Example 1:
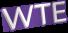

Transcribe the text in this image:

WTE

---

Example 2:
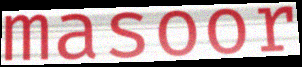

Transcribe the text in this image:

masoor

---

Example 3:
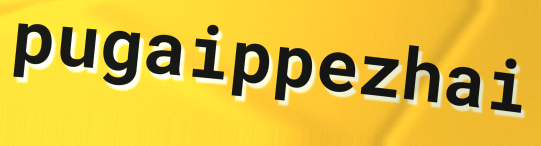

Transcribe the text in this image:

pugaippezhai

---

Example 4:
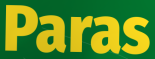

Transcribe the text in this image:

Paras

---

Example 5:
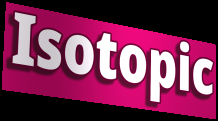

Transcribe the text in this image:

Isotopic